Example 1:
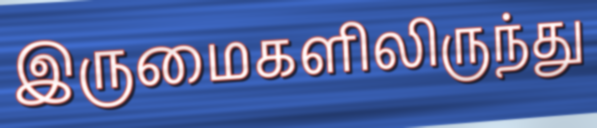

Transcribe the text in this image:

இருமைகளிலிருந்து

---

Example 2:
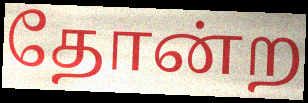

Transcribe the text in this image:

தோன்ற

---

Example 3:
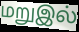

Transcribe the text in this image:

மறுஇல்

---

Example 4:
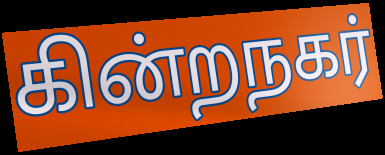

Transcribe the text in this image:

கின்றநகர்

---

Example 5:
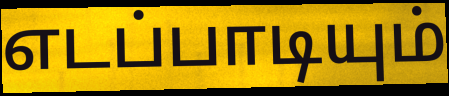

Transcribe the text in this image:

எடப்பாடியும்